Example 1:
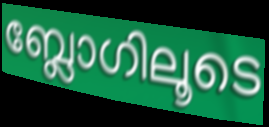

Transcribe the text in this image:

ബ്ലോഗിലൂടെ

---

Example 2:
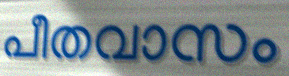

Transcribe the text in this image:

പീതവാസം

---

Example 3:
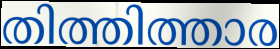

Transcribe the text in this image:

തിത്തിത്താര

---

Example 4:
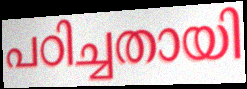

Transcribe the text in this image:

പഠിച്ചതായി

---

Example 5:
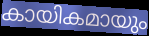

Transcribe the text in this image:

കായികമായും